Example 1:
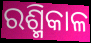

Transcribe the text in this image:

ରଶ୍ମିକାଳ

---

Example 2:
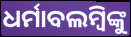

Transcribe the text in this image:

ଧର୍ମାବଲମ୍ବିଙ୍କୁ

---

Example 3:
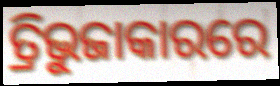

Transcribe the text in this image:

ତ୍ରିଭୁଜାକାରରେ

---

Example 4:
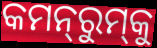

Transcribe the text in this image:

କମନ୍‍ରୁମ୍‍କୁ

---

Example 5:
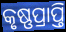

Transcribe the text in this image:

କୃଷ୍ଣପ୍ରାପ୍ତି